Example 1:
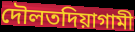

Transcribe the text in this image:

দৌলতদিয়াগামী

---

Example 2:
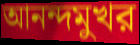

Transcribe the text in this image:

আনন্দমুখর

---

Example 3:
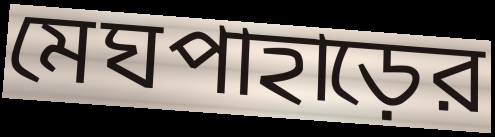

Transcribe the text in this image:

মেঘপাহাড়ের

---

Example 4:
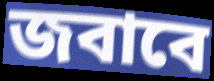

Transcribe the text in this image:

জবাবে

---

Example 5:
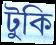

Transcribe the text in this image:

টুকি